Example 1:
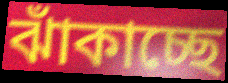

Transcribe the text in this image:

ঝাঁকাচ্ছে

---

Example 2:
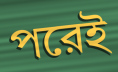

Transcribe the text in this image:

পরেই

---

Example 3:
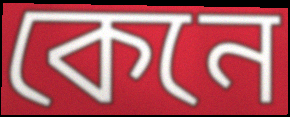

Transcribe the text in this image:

কেনে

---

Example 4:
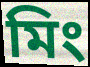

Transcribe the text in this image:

মিং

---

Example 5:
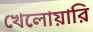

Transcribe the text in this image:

খেলোয়ারি